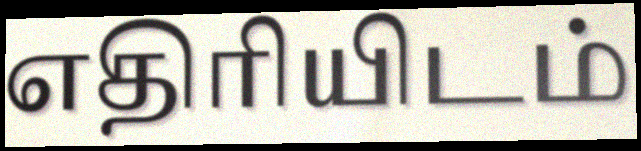
எதிரியிடம்